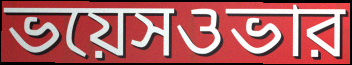
ভয়েসওভার